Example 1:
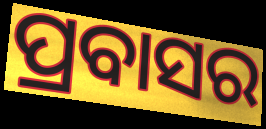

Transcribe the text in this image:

ପ୍ରବାସର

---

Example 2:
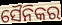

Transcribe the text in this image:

ସୈନିକର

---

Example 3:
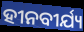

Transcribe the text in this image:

ହୀନବୀର୍ଯ୍ୟ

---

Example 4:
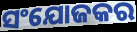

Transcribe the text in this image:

ସଂଯୋଜକର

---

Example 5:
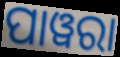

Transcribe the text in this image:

ପାୱରା